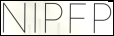
NIPFP